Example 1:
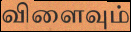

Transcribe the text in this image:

விளைவும்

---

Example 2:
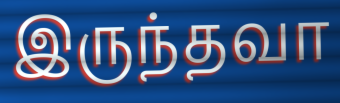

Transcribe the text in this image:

இருந்தவா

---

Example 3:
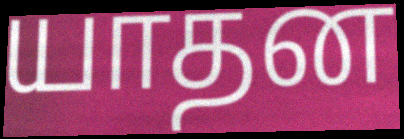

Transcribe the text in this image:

யாதன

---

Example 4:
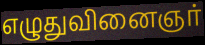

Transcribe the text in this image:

எழுதுவினைஞர்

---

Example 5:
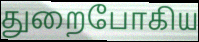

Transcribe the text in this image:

துறைபோகிய